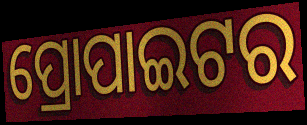
ପ୍ରୋପାଇଟର